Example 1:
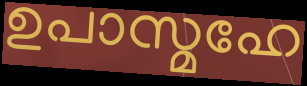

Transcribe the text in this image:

ഉപാസ്മഹേ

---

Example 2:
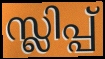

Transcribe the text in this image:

സ്ലിപ്പ്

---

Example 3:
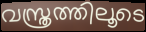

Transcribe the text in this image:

വസ്ത്രത്തിലൂടെ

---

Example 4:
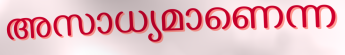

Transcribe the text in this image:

അസാധ്യമാണെന്ന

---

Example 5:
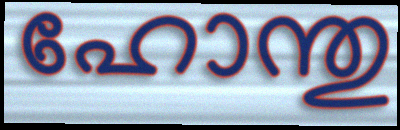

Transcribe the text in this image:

ഹോന്തു